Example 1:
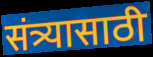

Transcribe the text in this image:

संत्र्यासाठी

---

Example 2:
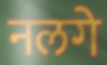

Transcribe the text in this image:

नलगे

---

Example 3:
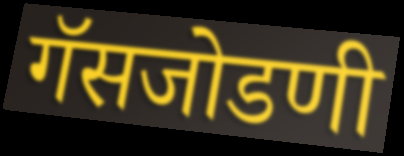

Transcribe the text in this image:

गॅसजोडणी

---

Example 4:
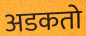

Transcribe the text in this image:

अडकतो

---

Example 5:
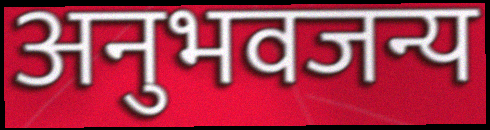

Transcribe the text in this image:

अनुभवजन्य